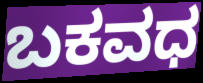
ಬಕವಧ